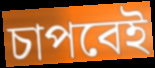
চাপবেই